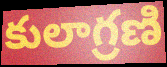
కులాగ్రణి